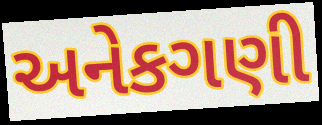
અનેકગણી